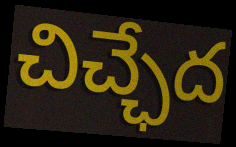
చిచ్ఛేద